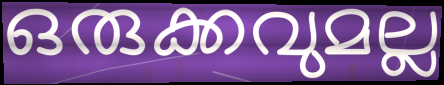
ഒരുക്കവുമല്ല